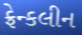
ફ્રેન્કલીન